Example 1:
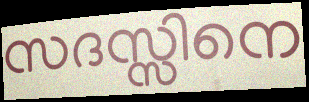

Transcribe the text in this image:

സദസ്സിനെ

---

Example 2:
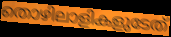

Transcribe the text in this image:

തൊഴിലാളികളുടേത്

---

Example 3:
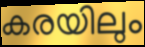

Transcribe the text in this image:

കരയിലും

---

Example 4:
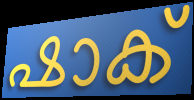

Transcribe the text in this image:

ഷാക്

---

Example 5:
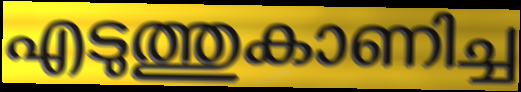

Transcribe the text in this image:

എടുത്തുകാണിച്ച